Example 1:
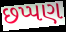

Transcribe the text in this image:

છપ્પણ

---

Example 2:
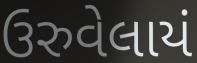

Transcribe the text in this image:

ઉરુવેલાયં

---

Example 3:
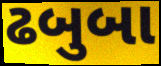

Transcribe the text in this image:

ઢબુબા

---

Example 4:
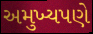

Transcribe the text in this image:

અમુખ્યપણે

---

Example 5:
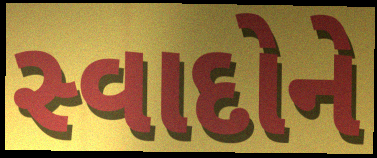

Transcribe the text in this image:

સ્વાદોને